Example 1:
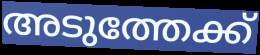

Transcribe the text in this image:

അടുത്തേക്ക്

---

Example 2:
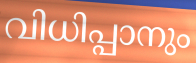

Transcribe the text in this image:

വിധിപ്പാനും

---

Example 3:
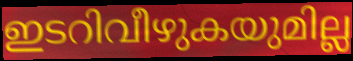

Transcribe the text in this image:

ഇടറിവീഴുകയുമില്ല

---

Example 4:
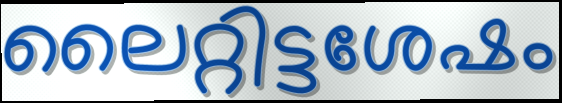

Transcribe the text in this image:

ലൈറ്റിട്ടശേഷം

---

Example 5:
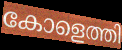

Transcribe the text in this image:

കോളെത്തി